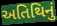
અતિથિનું